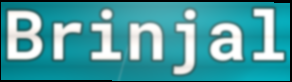
Brinjal